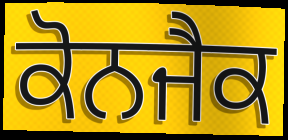
ਕੋਨਜੈਕ